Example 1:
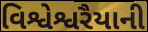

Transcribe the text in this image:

વિશ્વેશ્વરૈયાની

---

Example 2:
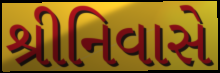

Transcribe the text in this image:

શ્રીનિવાસે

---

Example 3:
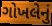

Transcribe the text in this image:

ગોખલેનું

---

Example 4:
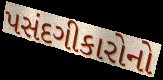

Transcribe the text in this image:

પસંદગીકારોનો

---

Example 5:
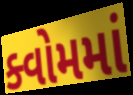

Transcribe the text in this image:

ક્વોમમાં